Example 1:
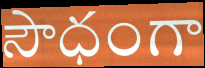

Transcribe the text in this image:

సౌధంగా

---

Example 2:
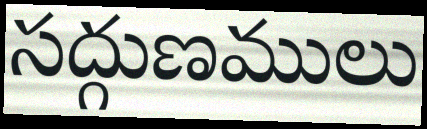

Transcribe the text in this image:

సద్గుణములు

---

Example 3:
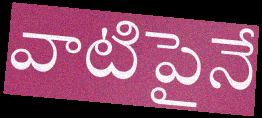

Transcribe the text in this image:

వాటిపైనే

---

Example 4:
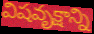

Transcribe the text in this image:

విషవృక్షాన్ని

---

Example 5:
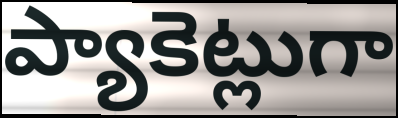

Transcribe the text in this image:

ప్యాకెట్లుగా